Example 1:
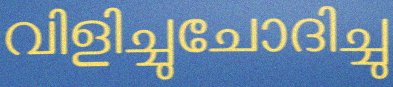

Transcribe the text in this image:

വിളിച്ചുചോദിച്ചു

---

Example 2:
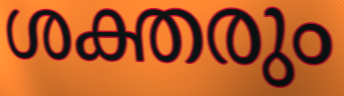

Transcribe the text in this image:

ശക്തരും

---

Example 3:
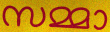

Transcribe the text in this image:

സമ്മാ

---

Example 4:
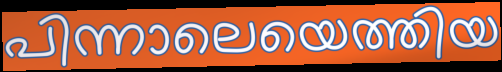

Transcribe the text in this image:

പിന്നാലെയെത്തിയ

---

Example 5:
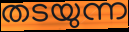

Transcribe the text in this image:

തടയുന്ന